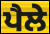
ਪੈਲੇ